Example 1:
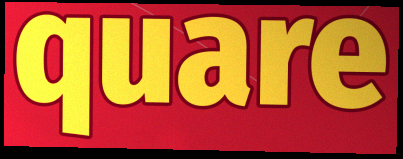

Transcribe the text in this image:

quare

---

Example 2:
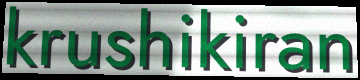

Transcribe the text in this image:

krushikiran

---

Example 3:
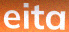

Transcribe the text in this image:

eita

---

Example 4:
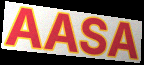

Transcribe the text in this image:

AASA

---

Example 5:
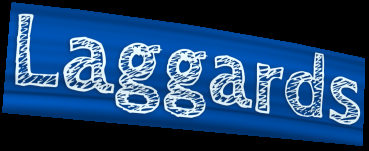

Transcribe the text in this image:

Laggards